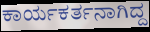
ಕಾರ್ಯಕರ್ತನಾಗಿದ್ದ